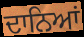
ਦਾਨਿਆਂ